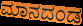
ಮಾನದಂಡ